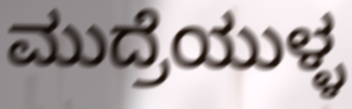
ಮುದ್ರೆಯುಳ್ಳ